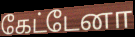
கேட்டேனா